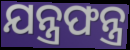
ଯନ୍ତ୍ରଫନ୍ତ୍ର